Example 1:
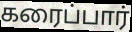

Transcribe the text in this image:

கரைப்பார்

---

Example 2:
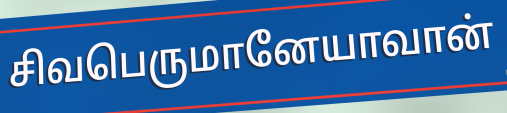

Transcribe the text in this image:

சிவபெருமானேயாவான்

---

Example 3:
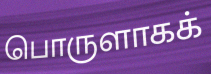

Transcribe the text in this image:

பொருளாகக்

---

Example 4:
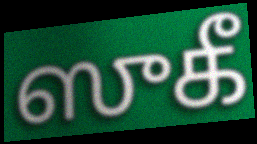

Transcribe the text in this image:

ஸுகீ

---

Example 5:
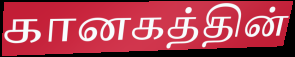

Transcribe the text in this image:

கானகத்தின்